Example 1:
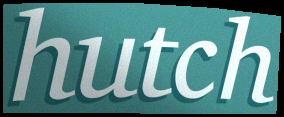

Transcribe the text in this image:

hutch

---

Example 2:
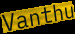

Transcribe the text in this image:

Vanthu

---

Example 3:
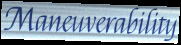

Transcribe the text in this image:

Maneuverability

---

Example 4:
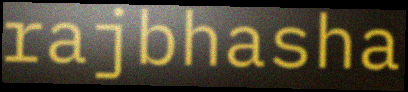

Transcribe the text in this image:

rajbhasha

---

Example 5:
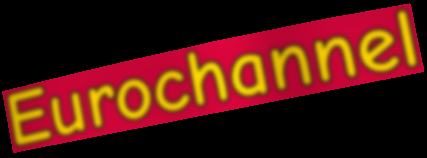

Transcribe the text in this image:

Eurochannel